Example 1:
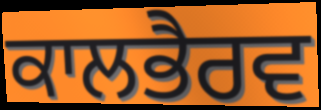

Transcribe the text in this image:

ਕਾਲਭੈਰਵ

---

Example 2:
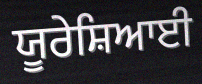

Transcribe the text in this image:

ਯੂਰੇਸ਼ਿਆਈ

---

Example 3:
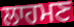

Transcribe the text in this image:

ਲਾਹਮਣ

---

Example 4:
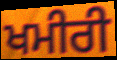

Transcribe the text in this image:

ਖਮੀਰੀ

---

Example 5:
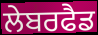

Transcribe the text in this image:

ਲੇਬਰਫੈਡ